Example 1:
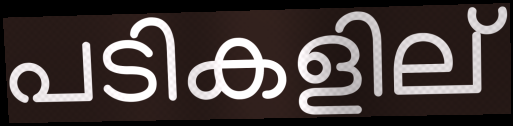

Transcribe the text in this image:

പടികളില്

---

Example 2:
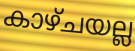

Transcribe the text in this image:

കാഴ്ചയല്ല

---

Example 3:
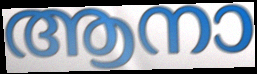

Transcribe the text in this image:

ആനാ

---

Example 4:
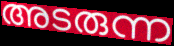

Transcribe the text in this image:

അടരുന്ന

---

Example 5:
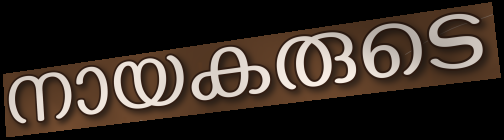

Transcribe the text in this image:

നായകരുടെ